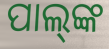
ପାଲ୍‌ଙ୍କ